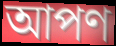
আপণ